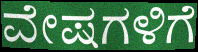
ವೇಷಗಳಿಗೆ